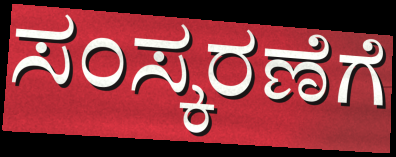
ಸಂಸ್ಕರಣೆಗೆ